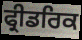
ਫ੍ਰੀਡਰਿਕ